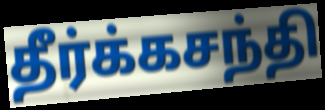
தீர்க்கசந்தி